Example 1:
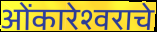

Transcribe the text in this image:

ओंकारेश्वराचे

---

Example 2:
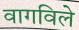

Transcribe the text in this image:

वागविले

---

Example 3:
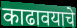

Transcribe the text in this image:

काढावयाचे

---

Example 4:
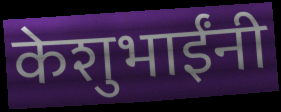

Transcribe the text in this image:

केशुभाईंनी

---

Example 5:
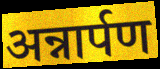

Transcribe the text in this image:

अन्नार्पण